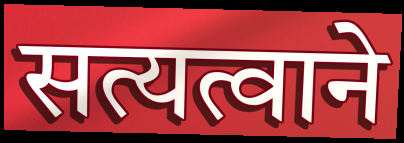
सत्यत्वाने